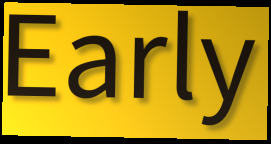
Early